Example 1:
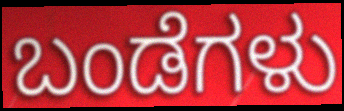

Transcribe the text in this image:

ಬಂಡೆಗಳು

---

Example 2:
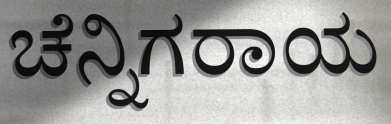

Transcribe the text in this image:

ಚೆನ್ನಿಗರಾಯ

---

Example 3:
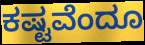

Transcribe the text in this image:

ಕಷ್ಟವೆಂದೂ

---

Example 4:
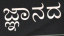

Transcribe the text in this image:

ಜ್ಞಾನದ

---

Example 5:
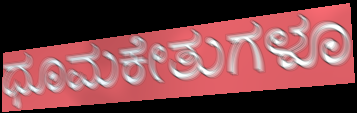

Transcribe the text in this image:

ಧೂಮಕೇತುಗಳೂ